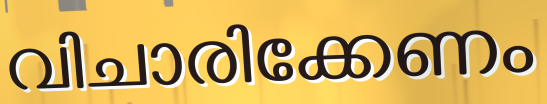
വിചാരിക്കേണം